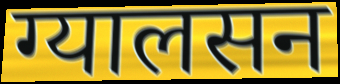
ग्यालसन